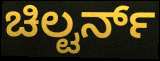
ಚಿಲ್ಟರ್ನ್